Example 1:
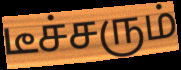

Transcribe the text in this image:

டீச்சரும்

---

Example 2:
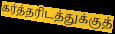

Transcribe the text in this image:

கர்த்தரிடத்துக்குத்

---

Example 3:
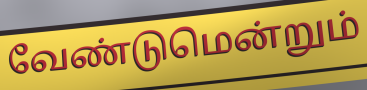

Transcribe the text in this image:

வேண்டுமென்றும்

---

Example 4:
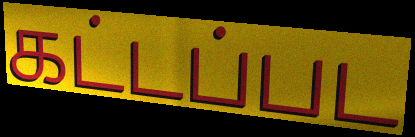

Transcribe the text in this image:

கட்டப்பட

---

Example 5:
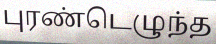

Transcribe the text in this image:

புரண்டெழுந்த